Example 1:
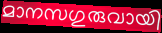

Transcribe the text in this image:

മാനസഗുരുവായി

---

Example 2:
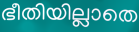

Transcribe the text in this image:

ഭീതിയില്ലാതെ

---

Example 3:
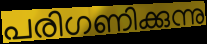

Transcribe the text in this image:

പരിഗണിക്കുന്നു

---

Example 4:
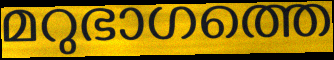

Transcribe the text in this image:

മറുഭാഗത്തെ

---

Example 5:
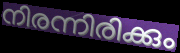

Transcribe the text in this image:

നിരന്നിരിക്കും